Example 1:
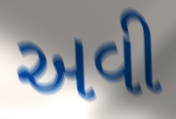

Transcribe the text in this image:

અવી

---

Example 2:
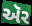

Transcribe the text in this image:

ઍર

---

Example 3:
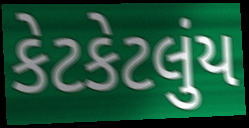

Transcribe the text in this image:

કેટકેટલુંય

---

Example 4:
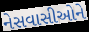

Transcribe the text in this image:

નેસવાસીઓને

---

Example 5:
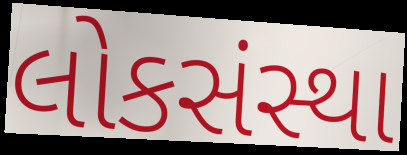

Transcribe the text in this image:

લોકસંસ્થા